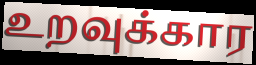
உறவுக்கார